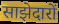
साझेदारों